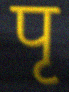
पृ